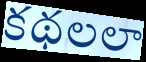
కథలలా